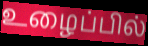
உழைப்பில்